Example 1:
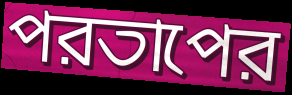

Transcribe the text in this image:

পরতাপের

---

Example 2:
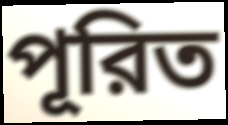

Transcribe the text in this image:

পূরিত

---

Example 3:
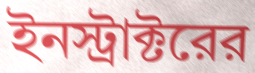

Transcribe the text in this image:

ইনস্ট্রাক্টরের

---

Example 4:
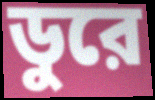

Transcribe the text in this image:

ডুরে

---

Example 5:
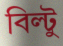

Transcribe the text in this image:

বিল্টু